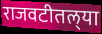
राजवटीतल्या